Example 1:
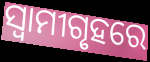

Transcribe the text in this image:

ସ୍ଵାମୀଗୃହରେ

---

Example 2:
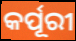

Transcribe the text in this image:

କର୍ପୂରୀ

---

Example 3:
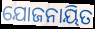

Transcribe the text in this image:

ଯୋଜନାୟିତ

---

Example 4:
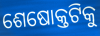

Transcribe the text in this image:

ଶେଷୋକ୍ତଟିକୁ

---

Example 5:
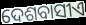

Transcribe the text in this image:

ଦେଶବାସୀଏ